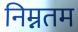
निम्नतम